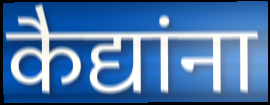
कैद्यांना